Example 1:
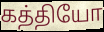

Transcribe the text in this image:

கத்தியோ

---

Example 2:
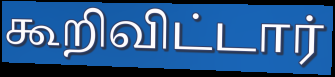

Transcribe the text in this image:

கூறிவிட்டார்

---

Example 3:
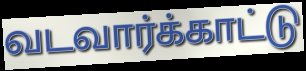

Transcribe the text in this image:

வடவார்க்காட்டு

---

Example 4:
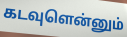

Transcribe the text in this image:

கடவுளென்னும்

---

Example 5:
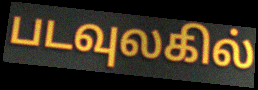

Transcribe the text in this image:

படவுலகில்